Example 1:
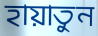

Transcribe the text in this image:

হায়াতুন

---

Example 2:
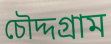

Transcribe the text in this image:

চৌদ্দগ্রাম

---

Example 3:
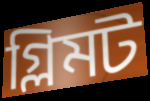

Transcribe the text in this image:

গ্লিমট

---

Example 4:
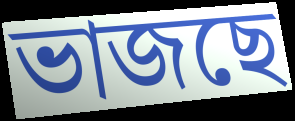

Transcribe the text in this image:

ভাজছে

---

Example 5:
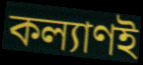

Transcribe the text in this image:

কল্যাণই